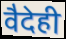
वैदेही